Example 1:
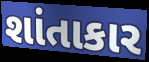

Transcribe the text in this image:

શાંતાકાર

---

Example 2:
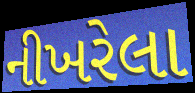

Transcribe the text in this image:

નીખરેલા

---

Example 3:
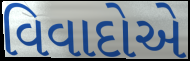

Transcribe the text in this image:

વિવાદોએ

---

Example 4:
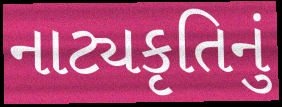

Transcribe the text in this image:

નાટ્યકૃતિનું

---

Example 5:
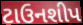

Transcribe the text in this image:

ટાઉનશીપ